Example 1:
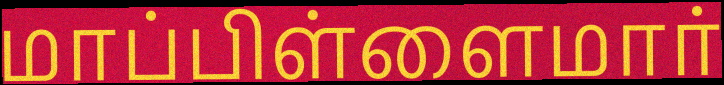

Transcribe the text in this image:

மாப்பிள்ளைமார்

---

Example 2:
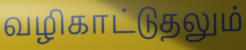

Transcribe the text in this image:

வழிகாட்டுதலும்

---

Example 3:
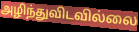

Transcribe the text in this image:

அழிந்துவிடவில்லை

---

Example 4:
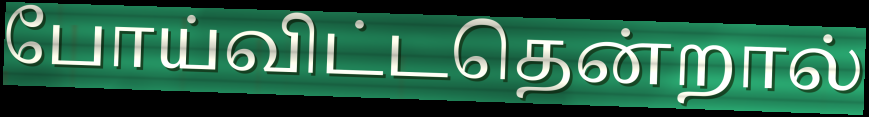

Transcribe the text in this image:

போய்விட்டதென்றால்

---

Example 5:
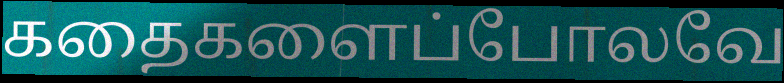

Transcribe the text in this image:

கதைகளைப்போலவே